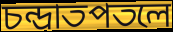
চন্দ্রাতপতলে